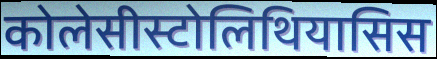
कोलेसीस्टोलिथियासिस